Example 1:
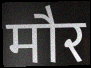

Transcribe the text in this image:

मौर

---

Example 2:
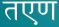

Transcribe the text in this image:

तएण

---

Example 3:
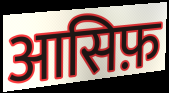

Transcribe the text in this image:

आसिफ़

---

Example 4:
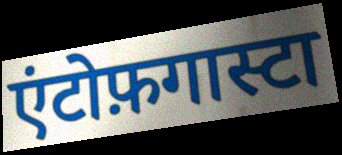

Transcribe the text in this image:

एंटोफ़गास्टा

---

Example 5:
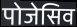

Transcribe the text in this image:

पोजेसिव